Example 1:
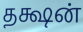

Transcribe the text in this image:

தக்ஷன்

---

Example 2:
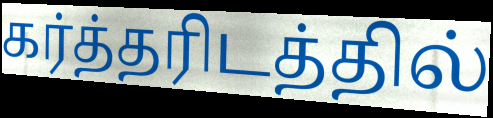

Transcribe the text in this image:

கர்த்தரிடத்தில்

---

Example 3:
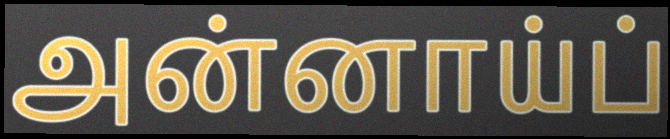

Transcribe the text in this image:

அன்னாய்ப்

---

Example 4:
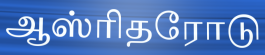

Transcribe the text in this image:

ஆஸ்ரிதரோடு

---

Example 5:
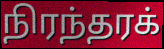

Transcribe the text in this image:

நிரந்தரக்